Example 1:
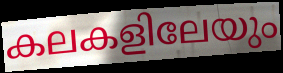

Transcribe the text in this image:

കലകളിലേയും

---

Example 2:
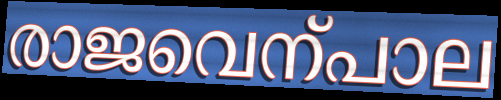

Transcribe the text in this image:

രാജവെന്പാല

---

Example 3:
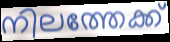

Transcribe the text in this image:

നിലത്തേക്ക്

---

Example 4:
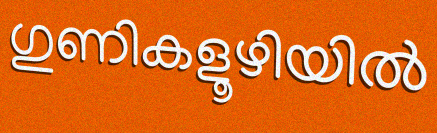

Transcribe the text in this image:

ഗുണികളൂഴിയിൽ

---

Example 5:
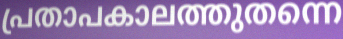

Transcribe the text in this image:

പ്രതാപകാലത്തുതന്നെ